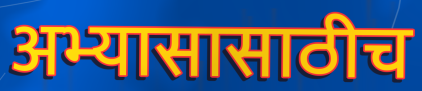
अभ्यासासाठीच